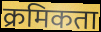
क्रमिकता